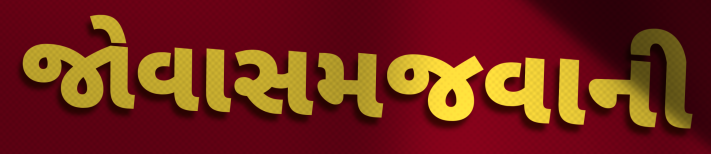
જોવાસમજવાની